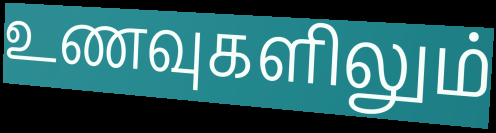
உணவுகளிலும்